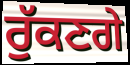
ਰੁੱਕਣਗੇ